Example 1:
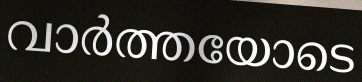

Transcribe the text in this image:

വാർത്തയോടെ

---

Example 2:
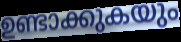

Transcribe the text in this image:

ഉണ്ടാക്കുകയും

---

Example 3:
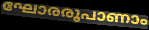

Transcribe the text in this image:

ഘോരരൂപാണാം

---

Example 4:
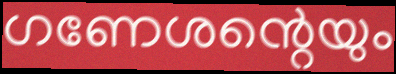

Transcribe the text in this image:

ഗണേശന്റെയും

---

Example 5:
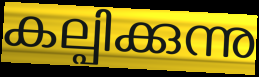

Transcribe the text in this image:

കല്പിക്കുന്നു